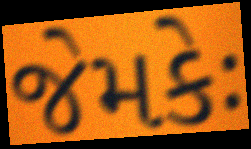
જેમકેઃ